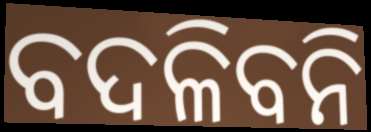
ବଦଳିବନି